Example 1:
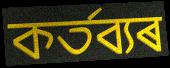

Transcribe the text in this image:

কৰ্তব্যৰ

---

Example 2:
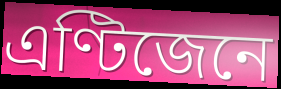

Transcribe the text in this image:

এণ্টিজেনে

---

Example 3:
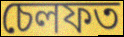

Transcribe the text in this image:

চেলফত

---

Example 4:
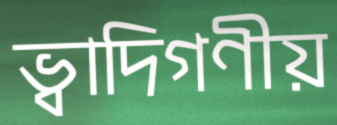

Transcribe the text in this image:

ভ্বাদিগণীয়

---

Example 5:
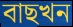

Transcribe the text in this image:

বাছখন